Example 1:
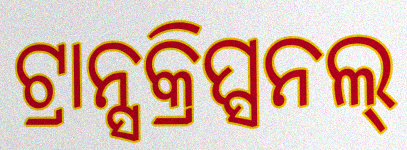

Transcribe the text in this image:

ଟ୍ରାନ୍ସକ୍ରିପ୍ସନଲ୍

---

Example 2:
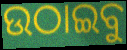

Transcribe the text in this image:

ଉଠାଇବୁ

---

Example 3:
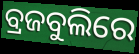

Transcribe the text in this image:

ବ୍ରଜବୁଲିରେ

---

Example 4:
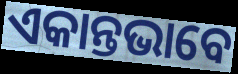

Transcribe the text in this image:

ଏକାନ୍ତଭାବେ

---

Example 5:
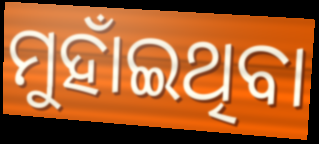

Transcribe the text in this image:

ମୁହାଁଇଥିବା